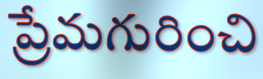
ప్రేమగురించి